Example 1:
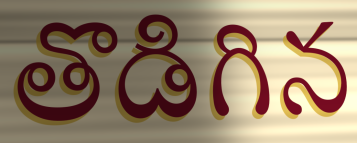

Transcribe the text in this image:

తొడిగిన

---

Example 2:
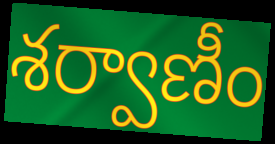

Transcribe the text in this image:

శర్వాణీం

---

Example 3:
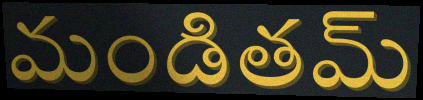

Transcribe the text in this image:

మండితమ్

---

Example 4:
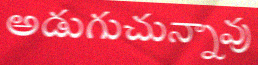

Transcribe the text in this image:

అడుగుచున్నావు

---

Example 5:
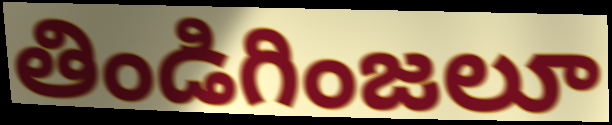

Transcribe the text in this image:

తిండిగింజలూ